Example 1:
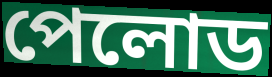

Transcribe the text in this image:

পেলোড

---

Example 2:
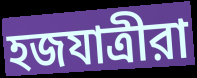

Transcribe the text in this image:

হজযাত্রীরা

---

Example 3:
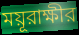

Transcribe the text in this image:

ময়ূরাক্ষীর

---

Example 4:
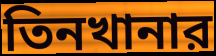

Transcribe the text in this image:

তিনখানার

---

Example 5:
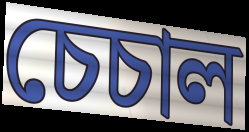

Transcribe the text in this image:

চেচাল